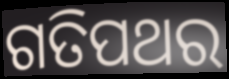
ଗତିପଥର